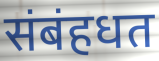
संबंहधत